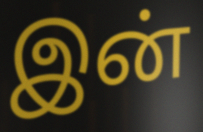
இன்